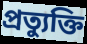
প্রত্যুক্তি